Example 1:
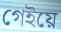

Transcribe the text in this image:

গেইয়ে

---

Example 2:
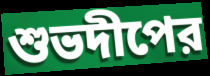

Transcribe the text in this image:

শুভদীপের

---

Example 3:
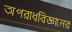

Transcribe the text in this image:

অপরাধবিজ্ঞানের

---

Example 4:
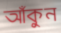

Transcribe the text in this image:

আঁকুন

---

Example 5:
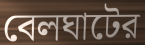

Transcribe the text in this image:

বেলঘাটের